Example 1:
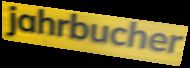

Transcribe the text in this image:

jahrbucher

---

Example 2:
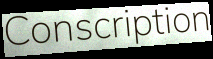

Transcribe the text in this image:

Conscription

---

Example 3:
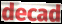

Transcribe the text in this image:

decad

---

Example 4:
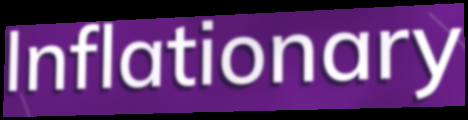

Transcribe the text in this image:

Inflationary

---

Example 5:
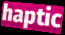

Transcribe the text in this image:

haptic